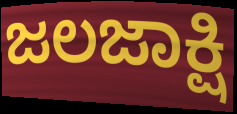
ಜಲಜಾಕ್ಷಿ